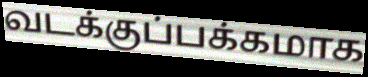
வடக்குப்பக்கமாக